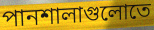
পানশালাগুলোতে